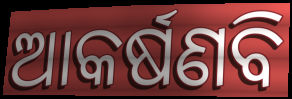
ଆକର୍ଷଣବି